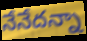
నేనేదన్నా